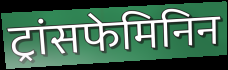
ट्रांसफेमिनिन